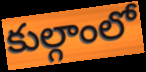
కుల్గాంలో